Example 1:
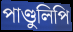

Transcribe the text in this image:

পাণ্ডুলিপি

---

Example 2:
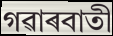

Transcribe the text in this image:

গৱাৰবাতী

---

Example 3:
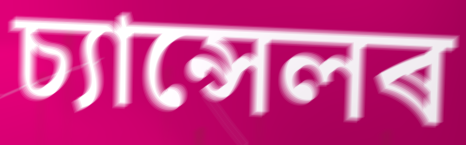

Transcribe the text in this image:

চ্যান্সেলৰ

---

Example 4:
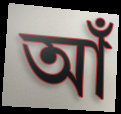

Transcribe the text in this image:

আঁ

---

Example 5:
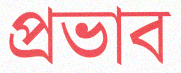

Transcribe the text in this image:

প্ৰভাব